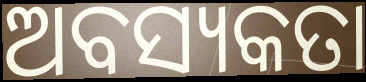
ଅବସ୍ୟକତା